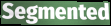
Segmented